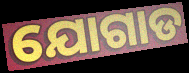
ଯୋଗାଡ